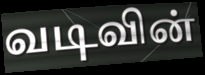
வடிவின்